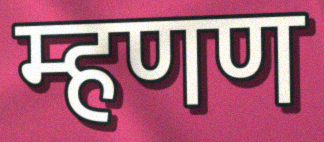
म्हणण